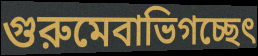
গুরুমেবাভিগচ্ছেৎ